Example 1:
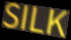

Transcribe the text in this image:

SILK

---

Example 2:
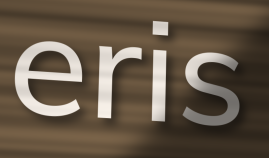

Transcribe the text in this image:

eris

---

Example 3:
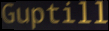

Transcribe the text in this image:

Guptill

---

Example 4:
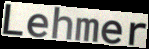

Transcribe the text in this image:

Lehmer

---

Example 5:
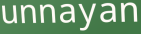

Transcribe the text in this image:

unnayan